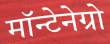
मॉन्टेनेग्रो